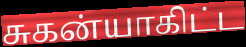
சுகன்யாகிட்ட